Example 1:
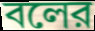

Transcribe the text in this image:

বলের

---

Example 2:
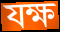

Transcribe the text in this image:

যক্ষ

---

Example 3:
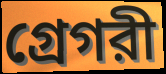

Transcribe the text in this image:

গ্রেগরী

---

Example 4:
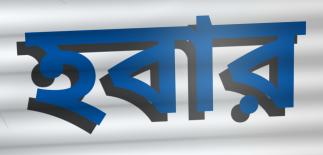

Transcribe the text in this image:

হবার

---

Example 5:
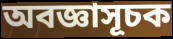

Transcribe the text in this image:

অবজ্ঞাসূচক